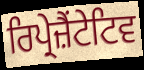
ਰਿਪ੍ਰੇਜ਼ੈਂਟੇਟਿਵ